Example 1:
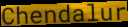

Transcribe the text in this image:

Chendalur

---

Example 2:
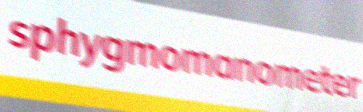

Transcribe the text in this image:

sphygmomanometer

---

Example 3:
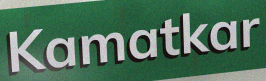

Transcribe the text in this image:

Kamatkar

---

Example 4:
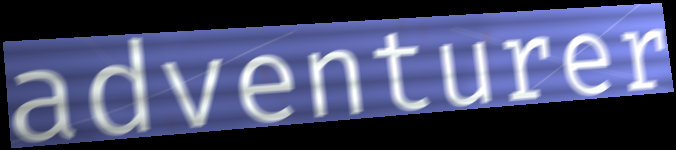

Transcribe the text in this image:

adventurer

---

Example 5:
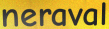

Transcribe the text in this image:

neraval